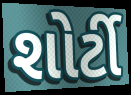
શોર્ટી